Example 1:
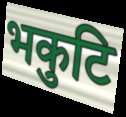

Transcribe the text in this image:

भकुटि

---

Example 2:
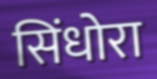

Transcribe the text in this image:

सिंधोरा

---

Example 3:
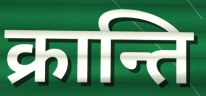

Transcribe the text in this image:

क्रान्ति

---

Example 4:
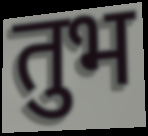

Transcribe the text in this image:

तुभ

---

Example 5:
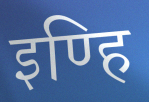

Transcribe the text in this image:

इण्हि